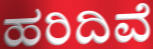
ಹರಿದಿವೆ